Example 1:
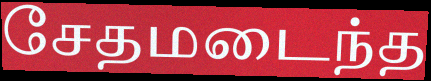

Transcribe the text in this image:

சேதமடைந்த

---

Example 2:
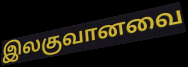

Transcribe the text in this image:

இலகுவானவை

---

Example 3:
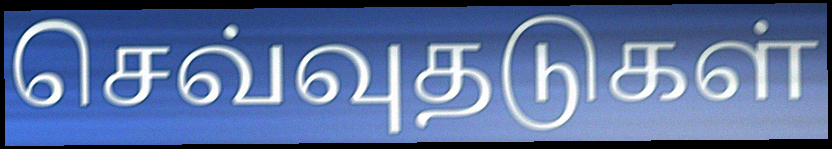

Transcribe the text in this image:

செவ்வுதடுகள்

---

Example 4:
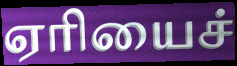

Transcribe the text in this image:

ஏரியைச்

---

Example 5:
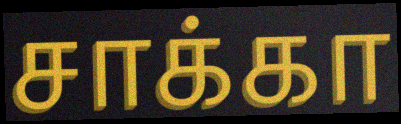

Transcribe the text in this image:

சாக்கா